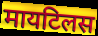
मायटिलस